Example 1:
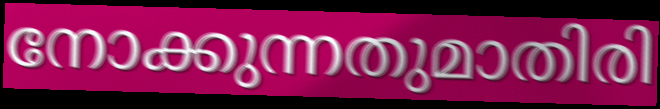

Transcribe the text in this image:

നോക്കുന്നതുമാതിരി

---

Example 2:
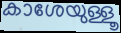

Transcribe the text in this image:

കാശേയുള്ളൂ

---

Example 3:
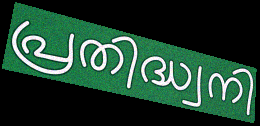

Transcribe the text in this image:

പ്രതിദ്ധ്വനി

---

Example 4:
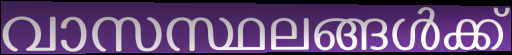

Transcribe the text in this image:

വാസസ്ഥലങ്ങൾക്ക്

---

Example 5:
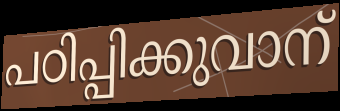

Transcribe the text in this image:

പഠിപ്പിക്കുവാന്